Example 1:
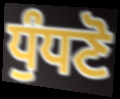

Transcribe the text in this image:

ਧੁੰਧਣੋ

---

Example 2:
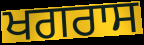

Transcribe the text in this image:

ਖਗਰਾਸ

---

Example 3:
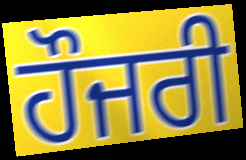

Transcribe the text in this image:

ਹੌਜਰੀ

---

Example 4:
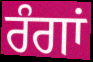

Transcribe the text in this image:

ਰੰਗਾਂ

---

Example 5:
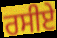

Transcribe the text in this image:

ਰਸੀਏ